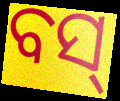
ବସ୍